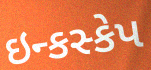
ઇન્કસ્કેપ